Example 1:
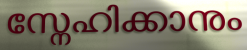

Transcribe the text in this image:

സ്നേഹിക്കാനും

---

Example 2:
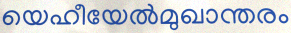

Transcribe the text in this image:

യെഹീയേൽമുഖാന്തരം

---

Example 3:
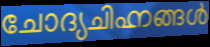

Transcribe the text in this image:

ചോദ്യചിഹ്നങ്ങൾ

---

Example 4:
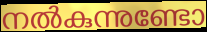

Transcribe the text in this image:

നൽകുന്നുണ്ടോ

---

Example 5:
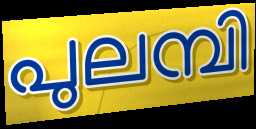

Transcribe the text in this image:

പുലമ്പി